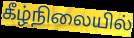
கீழ்நிலையில்